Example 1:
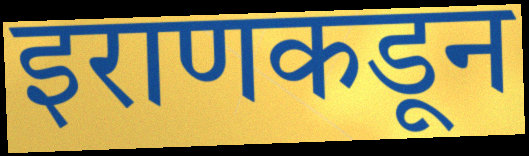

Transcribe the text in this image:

इराणकडून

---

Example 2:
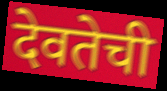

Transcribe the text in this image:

देवतेची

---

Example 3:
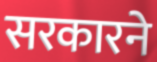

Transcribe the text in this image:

सरकारने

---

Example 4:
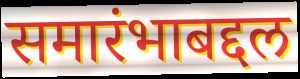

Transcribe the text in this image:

समारंभाबद्दल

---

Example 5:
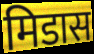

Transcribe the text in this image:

मिडास